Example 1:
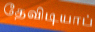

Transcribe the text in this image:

தேவிடியாப்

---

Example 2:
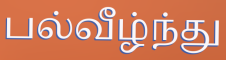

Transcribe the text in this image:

பல்வீழ்ந்து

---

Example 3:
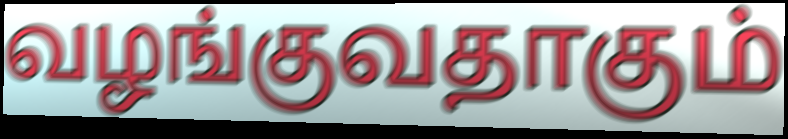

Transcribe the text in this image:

வழங்குவதாகும்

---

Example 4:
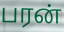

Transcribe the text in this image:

பரன்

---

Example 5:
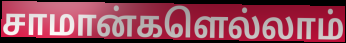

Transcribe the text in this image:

சாமான்களெல்லாம்